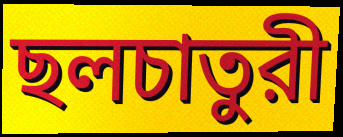
ছলচাতুরী